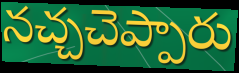
నచ్చచెప్పారు